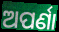
ଅପର୍ଣା